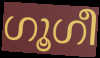
ഗൂഗീ